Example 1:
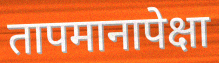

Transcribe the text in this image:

तापमानापेक्षा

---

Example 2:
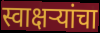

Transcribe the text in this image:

स्वाक्षऱ्यांचा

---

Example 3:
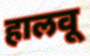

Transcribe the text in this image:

हालवू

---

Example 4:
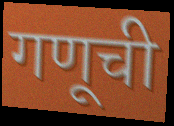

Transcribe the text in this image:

गणूची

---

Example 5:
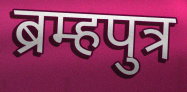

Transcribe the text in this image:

ब्रम्हपुत्र